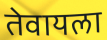
तेवायला